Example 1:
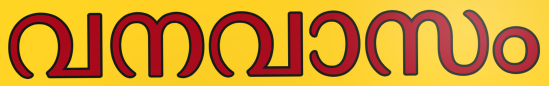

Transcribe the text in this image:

വനവാസം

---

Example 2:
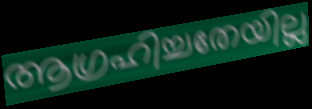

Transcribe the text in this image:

ആഗ്രഹിച്ചതേയില്ല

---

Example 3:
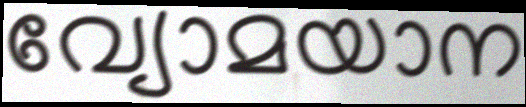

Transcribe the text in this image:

വ്യോമയാന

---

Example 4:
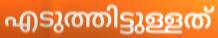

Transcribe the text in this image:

എടുത്തിട്ടുള്ളത്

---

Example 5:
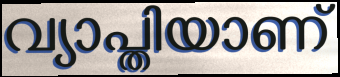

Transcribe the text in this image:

വ്യാപ്തിയാണ്